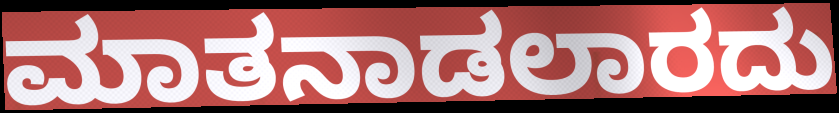
ಮಾತನಾಡಲಾರದು